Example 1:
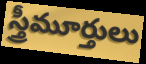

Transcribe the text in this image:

స్త్రీమూర్తులు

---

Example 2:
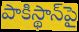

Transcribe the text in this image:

పాకిస్థాన్‌పై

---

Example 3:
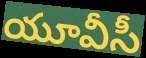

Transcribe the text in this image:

యూవీసీ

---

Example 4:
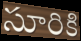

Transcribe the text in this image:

సూరికి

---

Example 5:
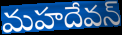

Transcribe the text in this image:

మహదేవన్